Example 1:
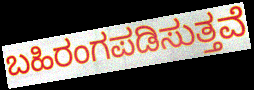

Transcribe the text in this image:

ಬಹಿರಂಗಪಡಿಸುತ್ತವೆ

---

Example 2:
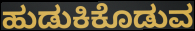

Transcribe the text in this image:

ಹುಡುಕಿಕೊಡುವ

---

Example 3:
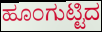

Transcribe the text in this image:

ಹೂಂಗುಟ್ಟಿದ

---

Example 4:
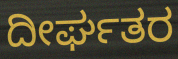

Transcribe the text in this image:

ದೀರ್ಘತರ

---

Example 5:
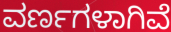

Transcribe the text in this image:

ವರ್ಣಗಳಾಗಿವೆ